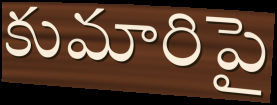
కుమారిపై